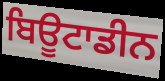
ਬਿਊਟਾਡੀਨ